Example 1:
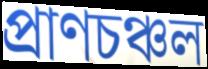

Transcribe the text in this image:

প্রাণচঞ্চল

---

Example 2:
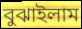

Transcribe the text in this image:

বুঝাইলাম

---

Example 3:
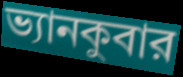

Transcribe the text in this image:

ভ্যানকুবার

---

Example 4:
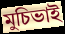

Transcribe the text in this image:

মুচিভাই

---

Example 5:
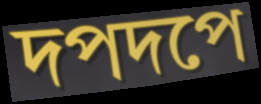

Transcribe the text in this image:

দপদপে